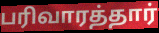
பரிவாரத்தார்